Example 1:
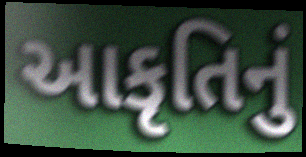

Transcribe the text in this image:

આકૃતિનું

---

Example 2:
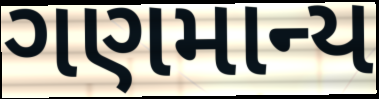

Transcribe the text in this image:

ગણમાન્ય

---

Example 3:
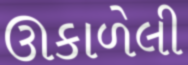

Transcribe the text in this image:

ઊકાળેલી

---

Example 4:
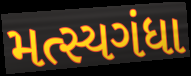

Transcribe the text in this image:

મત્સ્યગંધા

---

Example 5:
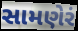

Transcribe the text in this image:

સામણેરં